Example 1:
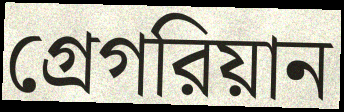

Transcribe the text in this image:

গ্রেগরিয়ান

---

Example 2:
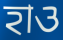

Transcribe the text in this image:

হাও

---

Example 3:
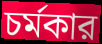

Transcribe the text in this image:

চর্মকার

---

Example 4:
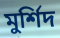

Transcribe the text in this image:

মুর্শিদ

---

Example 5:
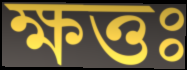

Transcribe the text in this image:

ক্ষত্তঃ